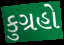
કુગ્રહો